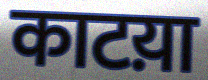
काटय़ा